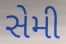
સેમી